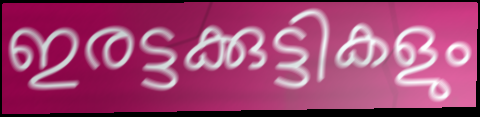
ഇരട്ടക്കുട്ടികളും